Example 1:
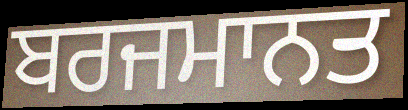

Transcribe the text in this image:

ਬਰਜਮਾਨਤ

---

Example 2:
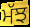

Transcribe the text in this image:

ਮੱਝ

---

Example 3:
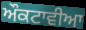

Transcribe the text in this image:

ਔਕਟਾਵੀਆ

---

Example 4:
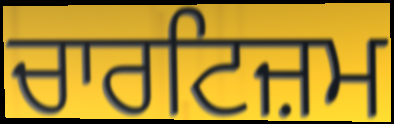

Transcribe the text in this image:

ਚਾਰਟਿਜ਼ਮ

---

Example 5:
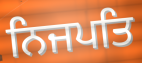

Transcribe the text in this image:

ਨਿਜਪਤਿ